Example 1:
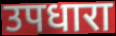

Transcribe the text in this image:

उपधारा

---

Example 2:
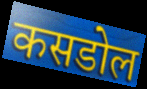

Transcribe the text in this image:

कसडोल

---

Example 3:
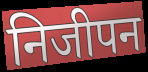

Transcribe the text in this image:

निजीपन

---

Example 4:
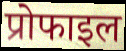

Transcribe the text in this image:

प्रोफाइल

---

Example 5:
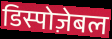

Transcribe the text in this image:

डिस्पोज़ेबल